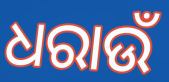
ଧରାଉଁ